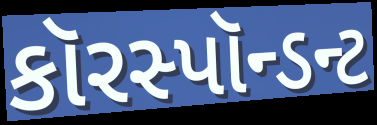
કૉરસ્પૉન્ડન્ટ